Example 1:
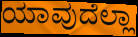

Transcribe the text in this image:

ಯಾವುದೆಲ್ಲಾ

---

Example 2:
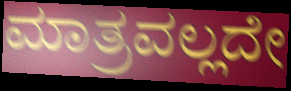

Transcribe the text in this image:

ಮಾತ್ರವಲ್ಲದೇ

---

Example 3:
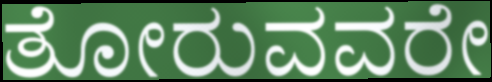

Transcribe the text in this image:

ತೋರುವವರೇ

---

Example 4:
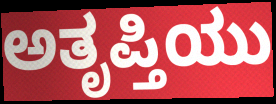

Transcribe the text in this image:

ಅತೃಪ್ತಿಯು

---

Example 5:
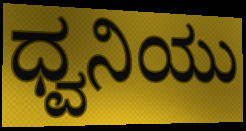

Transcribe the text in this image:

ಧ್ವನಿಯು